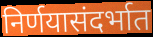
निर्णयासंदर्भात